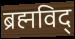
ब्रह्मविद्